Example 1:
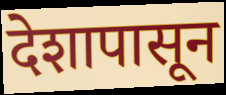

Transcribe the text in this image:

देशापासून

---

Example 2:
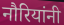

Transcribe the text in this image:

नौरियांनी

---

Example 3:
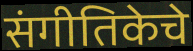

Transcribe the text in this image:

संगीतिकेचे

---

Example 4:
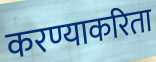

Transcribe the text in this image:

करण्याकरिता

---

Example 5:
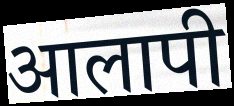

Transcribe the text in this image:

आलापी